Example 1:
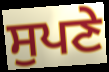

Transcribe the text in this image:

ਸੁਪਣੇ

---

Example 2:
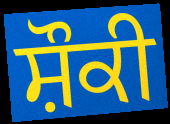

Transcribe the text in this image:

ਸ਼ੌਕੀ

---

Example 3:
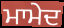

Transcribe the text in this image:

ਮਾਮੇਦ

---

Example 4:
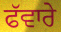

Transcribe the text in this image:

ਫੱਵਾਰੇ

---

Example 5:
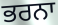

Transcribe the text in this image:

ਭਰਨਾ